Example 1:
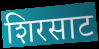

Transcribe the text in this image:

शिरसाट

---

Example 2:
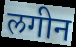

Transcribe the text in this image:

लगीन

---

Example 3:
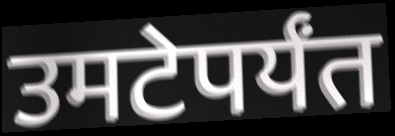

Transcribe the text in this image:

उमटेपर्यंत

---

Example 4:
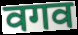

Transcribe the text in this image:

वगव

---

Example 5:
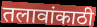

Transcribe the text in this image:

तलावांकाठी